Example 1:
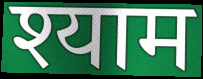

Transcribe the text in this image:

श्‍याम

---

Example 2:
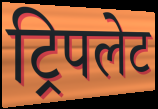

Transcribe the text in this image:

ट्रिपलेट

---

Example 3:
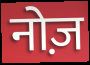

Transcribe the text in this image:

नोज़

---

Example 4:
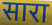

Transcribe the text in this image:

सारा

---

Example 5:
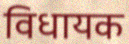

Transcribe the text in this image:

विधायक